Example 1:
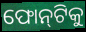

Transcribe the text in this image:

ଫୋନ୍‌ଟିକୁ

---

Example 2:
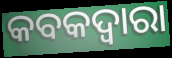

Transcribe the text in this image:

କବକଦ୍ୱାରା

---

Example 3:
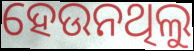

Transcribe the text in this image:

ହେଉନଥିଲୁ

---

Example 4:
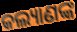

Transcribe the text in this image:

କଲ୍ୟାଣଙ୍କ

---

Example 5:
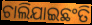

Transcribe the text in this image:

ଚାଲିଯାଇଛଂତି